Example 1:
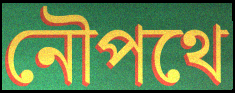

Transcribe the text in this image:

নৌপথে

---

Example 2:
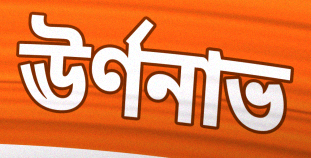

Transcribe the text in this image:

ঊর্ণনাভ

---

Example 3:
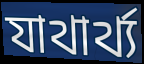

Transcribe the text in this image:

যাথার্থ্য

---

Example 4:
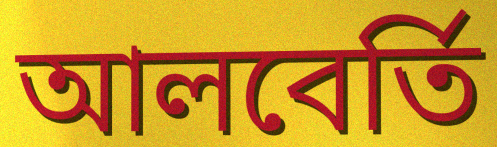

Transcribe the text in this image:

আলবের্তি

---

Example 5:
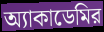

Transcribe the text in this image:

অ্যাকাডেমির